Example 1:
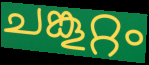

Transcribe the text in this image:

ചങ്കൂറ്റം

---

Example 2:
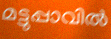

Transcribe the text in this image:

മട്ടുപ്പാവിൽ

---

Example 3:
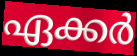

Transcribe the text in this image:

ഏക്കർ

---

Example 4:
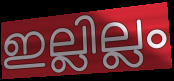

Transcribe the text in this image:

ഇല്ലില്ലം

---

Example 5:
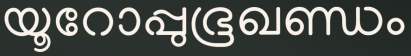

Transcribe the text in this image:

യൂറോപ്പുഭൂഖണ്ഡം